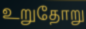
உறுதோறு